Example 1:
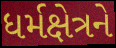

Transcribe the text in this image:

ધર્મક્ષેત્રને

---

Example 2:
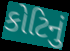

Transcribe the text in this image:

કોટિનું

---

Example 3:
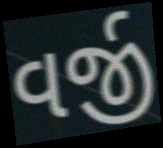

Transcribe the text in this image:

વર્જી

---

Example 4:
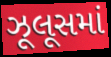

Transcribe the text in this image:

ઝૂલૂસમાં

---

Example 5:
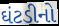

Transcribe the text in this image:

ઘંટડીનો